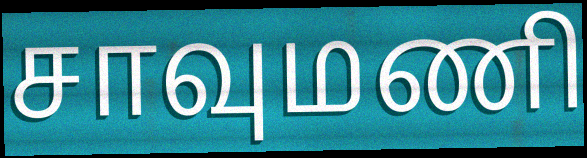
சாவுமணி